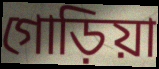
গোড়িয়া